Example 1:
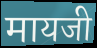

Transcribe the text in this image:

मायजी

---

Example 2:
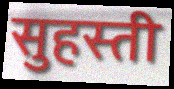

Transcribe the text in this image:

सुहस्ती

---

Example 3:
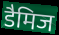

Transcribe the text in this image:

डैमिज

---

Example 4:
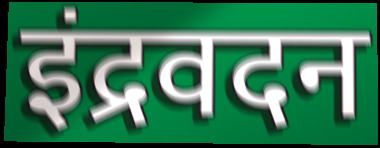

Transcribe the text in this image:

इंद्रवदन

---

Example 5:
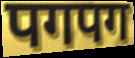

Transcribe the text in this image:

पगपग